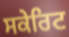
ਸਕੇਰਿਟ